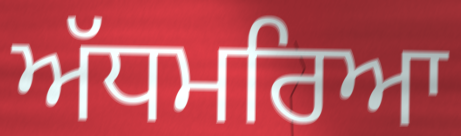
ਅੱਧਮਰਿਆ